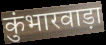
कुंभारवाड़ा